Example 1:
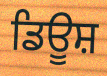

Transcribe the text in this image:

ਡਿਊਸ਼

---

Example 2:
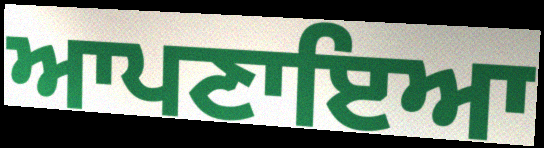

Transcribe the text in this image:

ਆਪਣਾਇਆ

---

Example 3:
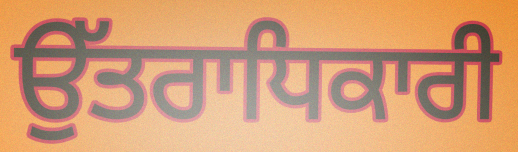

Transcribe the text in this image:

ਉੱਤਰਾਧਿਕਾਰੀ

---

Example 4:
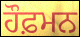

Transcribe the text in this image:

ਹੌਫ਼ਮਨ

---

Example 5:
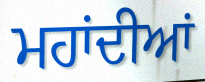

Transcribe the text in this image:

ਮਹਾਂਦੀਆਂ